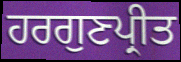
ਹਰਗੁਣਪ੍ਰੀਤ